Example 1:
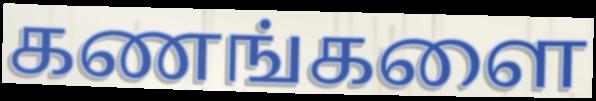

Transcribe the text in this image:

கணங்களை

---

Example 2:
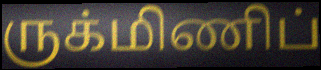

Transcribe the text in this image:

ருக்மிணிப்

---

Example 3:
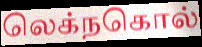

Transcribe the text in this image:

லெக்நகொல்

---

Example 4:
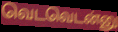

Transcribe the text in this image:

வெடவெடன்னு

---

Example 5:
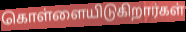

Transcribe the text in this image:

கொள்ளையிடுகிறார்கள்